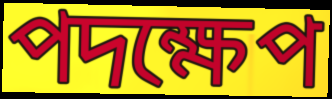
পদক্ষেপ